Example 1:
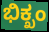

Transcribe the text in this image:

ಭಿಕ್ಖಂ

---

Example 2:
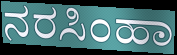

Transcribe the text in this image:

ನರಸಿಂಹಾ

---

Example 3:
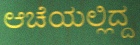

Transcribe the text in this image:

ಆಚೆಯಲ್ಲಿದ್ದ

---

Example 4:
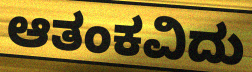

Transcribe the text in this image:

ಆತಂಕವಿದು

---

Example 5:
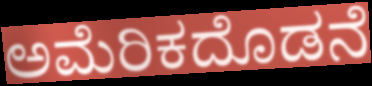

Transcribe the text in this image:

ಅಮೆರಿಕದೊಡನೆ